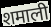
शमाली